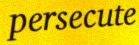
persecute